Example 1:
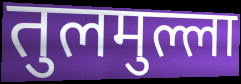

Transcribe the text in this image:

तुलमुल्ला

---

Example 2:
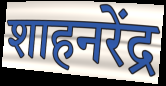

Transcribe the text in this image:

शाहनरेंद्र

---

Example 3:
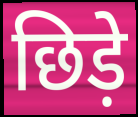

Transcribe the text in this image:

छिड़े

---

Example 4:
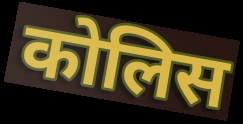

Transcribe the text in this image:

कोलिस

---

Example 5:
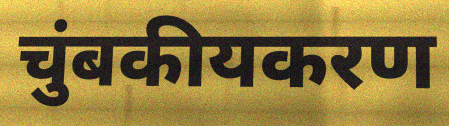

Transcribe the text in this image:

चुंबकीयकरण